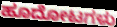
ಹೂದೋಟಗಳು